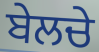
ਬੇਲਚੇ